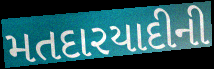
મતદારયાદીની